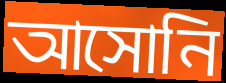
আসোনি